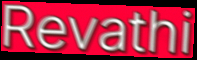
Revathi